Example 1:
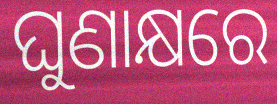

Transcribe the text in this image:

ଘୁଣାକ୍ଷରେ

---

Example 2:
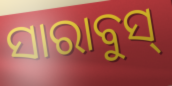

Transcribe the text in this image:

ସାରାବୁସ୍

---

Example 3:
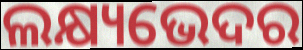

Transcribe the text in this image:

ଲକ୍ଷ୍ୟଭେଦର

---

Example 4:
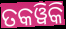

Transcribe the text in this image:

ତକୱିକି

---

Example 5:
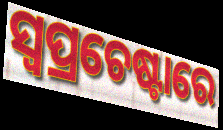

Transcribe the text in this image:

ସ୍ଵପ୍ରଚେଷ୍ଟାରେ